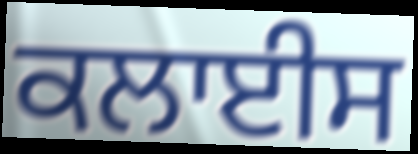
ਕਲਾਈਸ